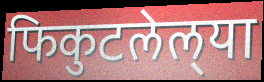
फिकुटलेल्या